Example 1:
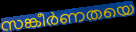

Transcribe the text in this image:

സങ്കീർണതയെ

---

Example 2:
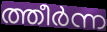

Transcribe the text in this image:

ത്തീർന്ന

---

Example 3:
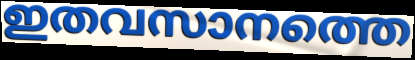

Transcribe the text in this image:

ഇതവസാനത്തെ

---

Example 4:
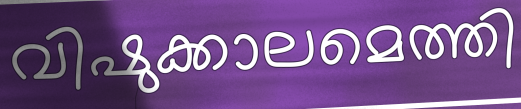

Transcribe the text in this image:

വിഷുക്കാലമെത്തി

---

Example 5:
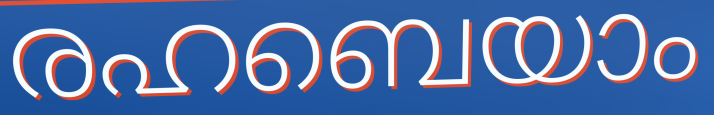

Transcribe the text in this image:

രഹബെയാം